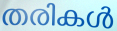
തരികൾ